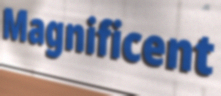
Magnificent